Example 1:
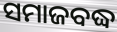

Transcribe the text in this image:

ସମାଜବଦ୍ଧ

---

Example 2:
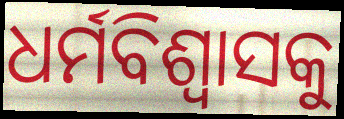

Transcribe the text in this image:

ଧର୍ମବିଶ୍ୱାସକୁ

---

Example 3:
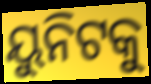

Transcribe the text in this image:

ୟୁନିଟକୁ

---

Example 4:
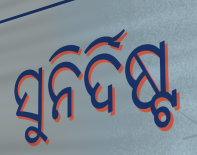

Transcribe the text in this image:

ସୁନିର୍ଦିଷ୍ଟ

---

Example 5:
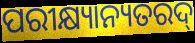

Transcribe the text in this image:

ପରୀକ୍ଷ୍ୟାନ୍ୟତରଦ୍